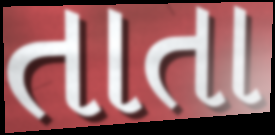
તાતા